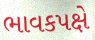
ભાવકપક્ષે